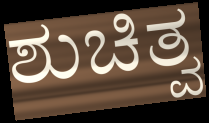
ಶುಚಿತ್ವ